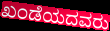
ಖಂಡೆಯದವರು